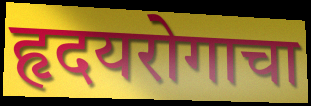
हृदयरोगाचा